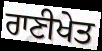
ਰਾਣੀਖੇਤ